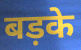
बड़के